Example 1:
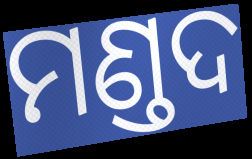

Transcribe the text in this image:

ମଣ୍ଡଦ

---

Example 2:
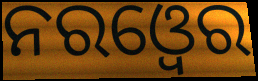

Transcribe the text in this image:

ନରଓ୍ବେର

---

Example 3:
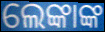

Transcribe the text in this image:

ଲେଙ୍କାଙ୍କ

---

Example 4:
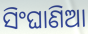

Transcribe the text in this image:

ସିଂଘାଣିଆ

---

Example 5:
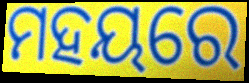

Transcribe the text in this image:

ମହୟରେ